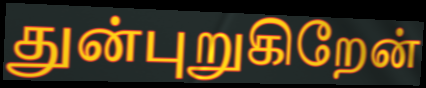
துன்புறுகிறேன்